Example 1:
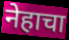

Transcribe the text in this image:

नेहाचा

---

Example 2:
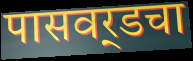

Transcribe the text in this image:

पासवर्डचा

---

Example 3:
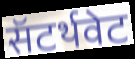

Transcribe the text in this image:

सॅटर्थवेट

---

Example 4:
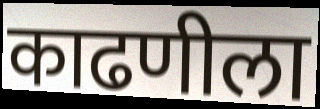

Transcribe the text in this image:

काढणीला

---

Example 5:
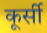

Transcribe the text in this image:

कूर्सी